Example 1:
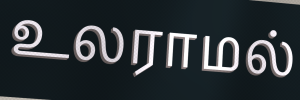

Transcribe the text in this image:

உலராமல்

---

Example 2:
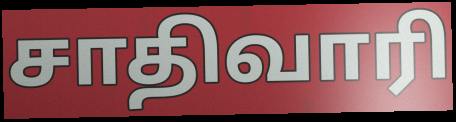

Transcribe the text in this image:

சாதிவாரி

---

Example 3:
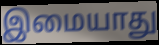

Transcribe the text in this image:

இமையாது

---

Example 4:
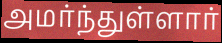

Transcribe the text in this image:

அமர்ந்துள்ளார்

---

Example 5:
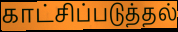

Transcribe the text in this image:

காட்சிப்படுத்தல்